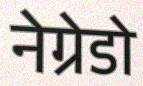
नेग्रेडो